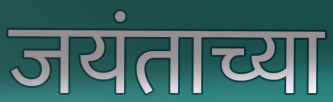
जयंताच्या